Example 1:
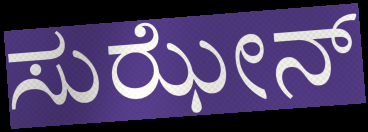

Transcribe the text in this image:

ಸುಝೇನ್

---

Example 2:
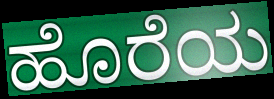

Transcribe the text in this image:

ಹೊರೆಯ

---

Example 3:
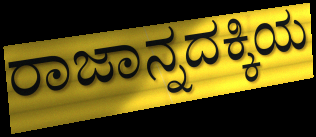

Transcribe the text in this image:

ರಾಜಾನ್ನದಕ್ಕಿಯ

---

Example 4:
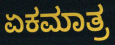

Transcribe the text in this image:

ಏಕಮಾತ್ರ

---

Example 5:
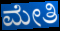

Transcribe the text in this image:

ಮೇತಿ